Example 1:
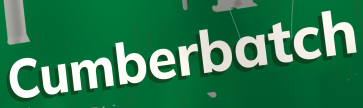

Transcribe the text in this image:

Cumberbatch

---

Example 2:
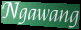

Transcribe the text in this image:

Ngawang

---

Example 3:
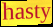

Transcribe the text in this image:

hasty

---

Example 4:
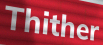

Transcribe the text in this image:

Thither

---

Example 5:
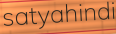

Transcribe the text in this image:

satyahindi